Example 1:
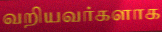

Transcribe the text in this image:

வறியவர்களாக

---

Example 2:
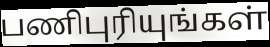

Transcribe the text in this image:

பணிபுரியுங்கள்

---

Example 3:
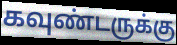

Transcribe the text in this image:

கவுண்டருக்கு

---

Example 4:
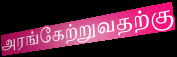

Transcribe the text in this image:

அரங்கேற்றுவதற்கு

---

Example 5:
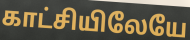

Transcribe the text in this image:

காட்சியிலேயே